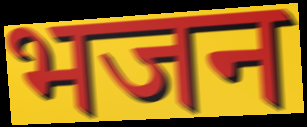
भजन